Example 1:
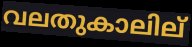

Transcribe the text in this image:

വലതുകാലില്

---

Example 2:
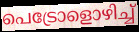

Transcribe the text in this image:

പെട്രോളൊഴിച്ച്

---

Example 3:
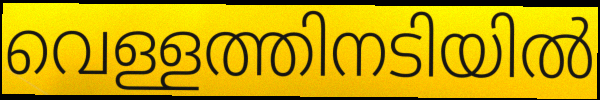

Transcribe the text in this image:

വെള്ളത്തിനടിയിൽ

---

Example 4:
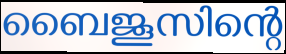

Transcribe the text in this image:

ബൈജൂസിന്റെ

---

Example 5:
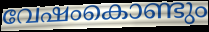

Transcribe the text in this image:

വേഷംകൊണ്ടും